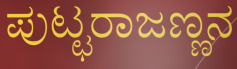
ಪುಟ್ಟರಾಜಣ್ಣನ